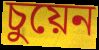
চুয়েন